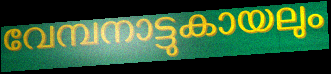
വേമ്പനാട്ടുകായലും